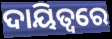
ଦାୟିତ୍ୱରେ